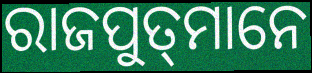
ରାଜପୁତ୍‍ମାନେ